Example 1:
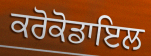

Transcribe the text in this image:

ਕਰੋਕੋਡਾਇਲ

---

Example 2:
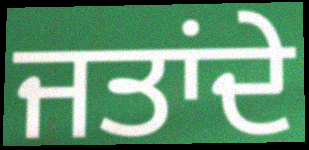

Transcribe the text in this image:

ਜਤਾਂਦੇ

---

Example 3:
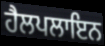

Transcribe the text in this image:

ਹੈਲਪਲਾਇਨ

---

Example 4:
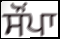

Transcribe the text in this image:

ਸੌਂਪਾ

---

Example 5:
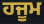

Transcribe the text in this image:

ਹਜੂਮ